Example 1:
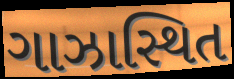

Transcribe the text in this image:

ગાઝાસ્થિત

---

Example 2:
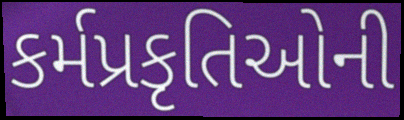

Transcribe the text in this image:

કર્મપ્રકૃતિઓની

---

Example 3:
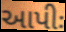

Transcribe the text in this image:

આપીઃ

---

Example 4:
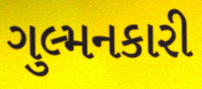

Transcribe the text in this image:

ગુલ્મનકારી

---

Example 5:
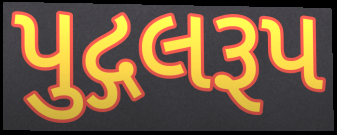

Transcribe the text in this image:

પુદ્ગલરૂપ